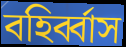
বহির্ব্বাস